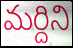
మర్దిని